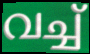
വച്ച്